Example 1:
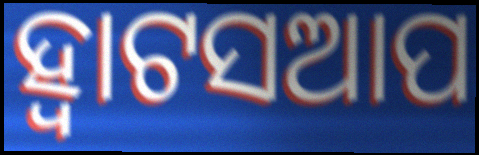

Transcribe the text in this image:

ହ୍ୱାଟସଆପ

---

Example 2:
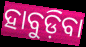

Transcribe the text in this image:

ହାବୁଡ଼ିବା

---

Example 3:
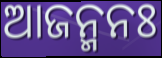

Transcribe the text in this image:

ଆଜନ୍ମନଃ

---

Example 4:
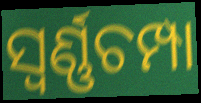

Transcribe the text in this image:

ସ୍ୱର୍ଣ୍ଣଚମ୍ପା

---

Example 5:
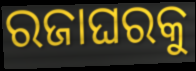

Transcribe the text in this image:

ରଜାଘରକୁ